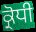
ਕ੍ਰੋਧੀ